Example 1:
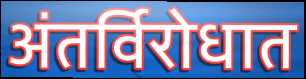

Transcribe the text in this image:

अंतर्विरोधात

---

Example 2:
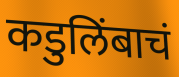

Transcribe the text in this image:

कडुलिंबाचं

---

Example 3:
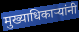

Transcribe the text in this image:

मुख्याधिकाऱ्यांनी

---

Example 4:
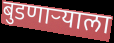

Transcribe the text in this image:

बुडणाऱ्याला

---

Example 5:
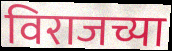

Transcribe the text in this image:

विराजच्या